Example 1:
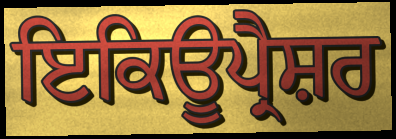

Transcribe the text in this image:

ਇਕਿਊਪ੍ਰੈਸ਼ਰ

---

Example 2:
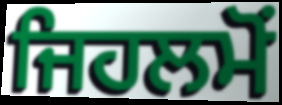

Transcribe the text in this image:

ਜਿਹਲਮੋਂ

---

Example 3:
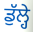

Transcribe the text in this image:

ਡੁੱਲ੍ਹੇ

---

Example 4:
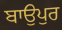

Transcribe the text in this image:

ਬਾਉਪੁਰ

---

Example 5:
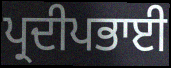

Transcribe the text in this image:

ਪ੍ਰਦੀਪਭਾਈ